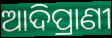
ଆଦିପ୍ରାଣୀ